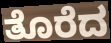
ತೊರೆದ